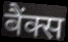
बैंक्‍स